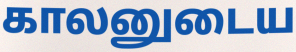
காலனுடைய